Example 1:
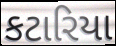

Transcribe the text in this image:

કટારિયા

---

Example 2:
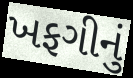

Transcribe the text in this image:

ખફગીનું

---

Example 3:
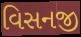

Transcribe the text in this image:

વિસનજી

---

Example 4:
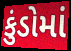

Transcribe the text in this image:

કુંડોમાં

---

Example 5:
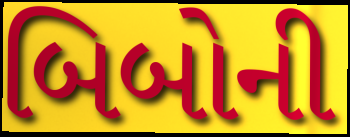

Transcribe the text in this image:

બિબોની